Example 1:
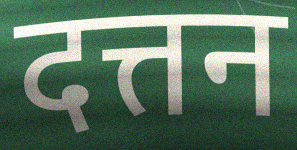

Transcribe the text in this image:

दत्तन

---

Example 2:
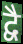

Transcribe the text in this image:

द्वै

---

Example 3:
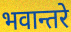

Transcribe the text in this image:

भवान्तरे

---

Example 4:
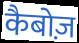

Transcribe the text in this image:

कैबोज़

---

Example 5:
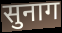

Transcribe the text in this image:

सुनाग